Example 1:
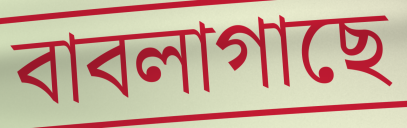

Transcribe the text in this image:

বাবলাগাছে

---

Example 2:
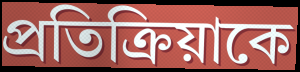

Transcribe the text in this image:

প্রতিক্রিয়াকে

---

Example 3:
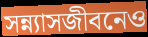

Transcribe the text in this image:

সন্ন্যাসজীবনেও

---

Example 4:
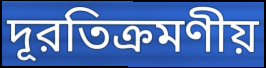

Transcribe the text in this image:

দূরতিক্রমণীয়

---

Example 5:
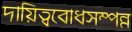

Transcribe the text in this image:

দায়িত্ববোধসম্পন্ন